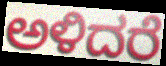
ಅಳಿದರೆ